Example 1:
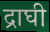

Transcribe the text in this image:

द्राघी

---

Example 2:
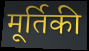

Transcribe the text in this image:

मूर्तिकी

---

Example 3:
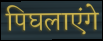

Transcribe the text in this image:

पिघलाएंगे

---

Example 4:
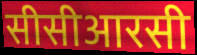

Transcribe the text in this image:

सीसीआरसी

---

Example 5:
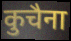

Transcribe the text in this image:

कुचैना